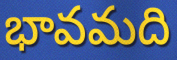
భావమది